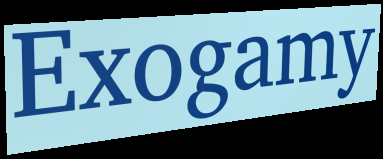
Exogamy